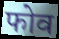
फोव